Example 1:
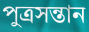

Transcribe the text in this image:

পুত্রসন্তান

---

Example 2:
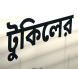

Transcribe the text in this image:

টুকিলের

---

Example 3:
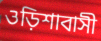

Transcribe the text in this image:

ওড়িশাবাসী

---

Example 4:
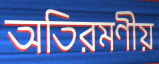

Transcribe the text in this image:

অতিরমণীয়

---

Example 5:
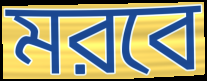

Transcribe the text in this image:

মরবে